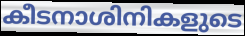
കീടനാശിനികളുടെ